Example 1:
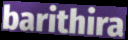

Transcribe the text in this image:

barithira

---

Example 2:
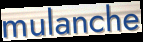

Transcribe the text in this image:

mulanche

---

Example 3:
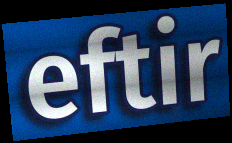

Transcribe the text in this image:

eftir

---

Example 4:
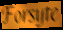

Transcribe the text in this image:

Forsyte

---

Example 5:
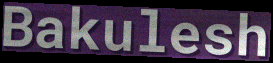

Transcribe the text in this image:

Bakulesh